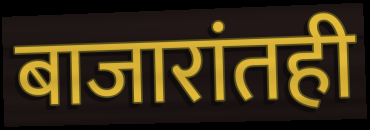
बाजारांतही